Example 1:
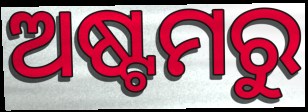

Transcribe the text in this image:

ଅଷ୍ଟମରୁ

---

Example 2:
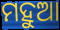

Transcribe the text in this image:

ମହୁଆ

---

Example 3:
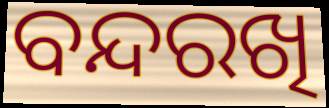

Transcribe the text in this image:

ବନ୍ଦରଖି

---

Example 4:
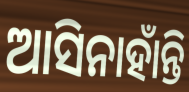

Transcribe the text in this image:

ଆସିନାହାଁନ୍ତି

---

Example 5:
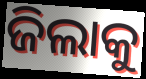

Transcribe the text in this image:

ଜିଲାକୁ